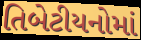
તિબેટીયનોમાં